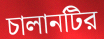
চালানটির